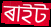
ৰাইট